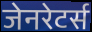
जेनरेटर्स